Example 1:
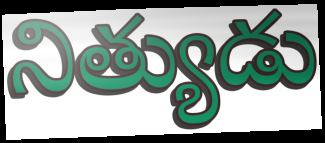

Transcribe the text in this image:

నిత్యుడు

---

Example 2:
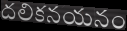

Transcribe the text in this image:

దలికనయనం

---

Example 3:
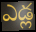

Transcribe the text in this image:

ఎడ్ల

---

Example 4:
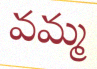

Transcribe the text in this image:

వమ్మ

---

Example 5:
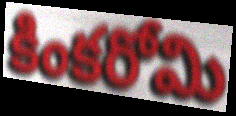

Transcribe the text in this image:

కింకరోమి